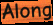
Along